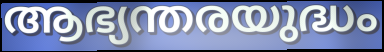
ആഭ്യന്തരയുദ്ധം